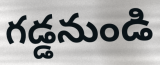
గడ్డనుండి